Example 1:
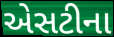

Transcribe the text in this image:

એસટીના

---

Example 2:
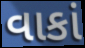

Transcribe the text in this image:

વાકાં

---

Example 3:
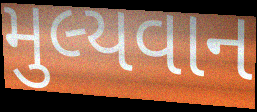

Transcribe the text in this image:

મુલ્યવાન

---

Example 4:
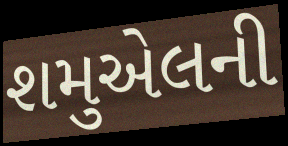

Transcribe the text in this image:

શમુએલની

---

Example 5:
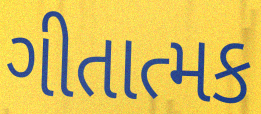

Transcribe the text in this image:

ગીતાત્મક